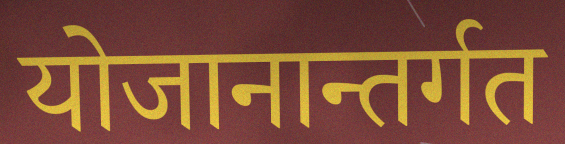
योजानान्तर्गत